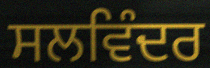
ਸਲਵਿੰਦਰ